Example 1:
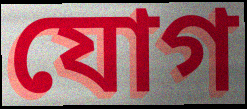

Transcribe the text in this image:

যোগ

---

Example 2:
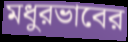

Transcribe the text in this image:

মধুরভাবের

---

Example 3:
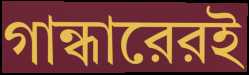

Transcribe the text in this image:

গান্ধারেরই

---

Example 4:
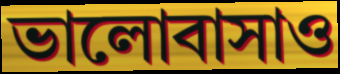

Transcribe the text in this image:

ভালোবাসাও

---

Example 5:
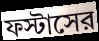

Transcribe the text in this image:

ফস্টাসের